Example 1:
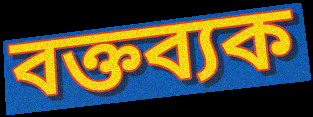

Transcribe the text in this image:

বক্তব্যক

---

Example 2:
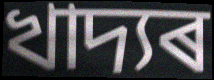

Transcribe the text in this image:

খাদ্যৰ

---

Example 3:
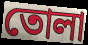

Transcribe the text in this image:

তোলা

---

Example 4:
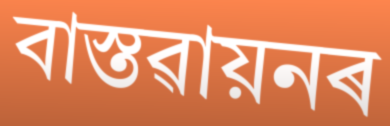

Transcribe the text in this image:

বাস্তৱায়নৰ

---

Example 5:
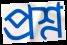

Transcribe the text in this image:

প্ৰশ্ন